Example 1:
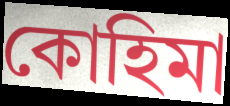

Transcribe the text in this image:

কোহিমা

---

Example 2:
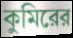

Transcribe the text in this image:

কুমিরের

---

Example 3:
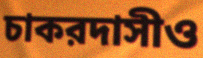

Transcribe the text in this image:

চাকরদাসীও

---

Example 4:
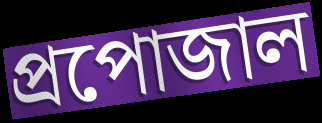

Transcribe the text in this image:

প্রপোজাল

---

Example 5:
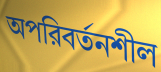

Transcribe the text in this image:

অপরিবর্তনশীল